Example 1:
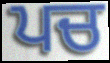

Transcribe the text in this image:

ਪਚ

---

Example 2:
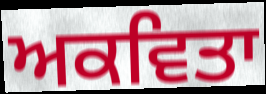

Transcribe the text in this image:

ਅਕਵਿਤਾ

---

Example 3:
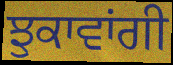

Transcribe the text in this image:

ਝੁਕਾਵਾਂਗੀ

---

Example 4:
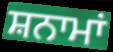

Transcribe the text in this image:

ਸ਼ਨਾਮਾਂ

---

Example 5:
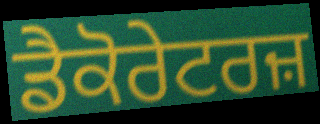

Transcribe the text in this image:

ਡੈਕੋਰੇਟਰਜ਼